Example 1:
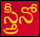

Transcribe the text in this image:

స్త్రీనో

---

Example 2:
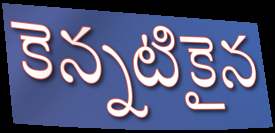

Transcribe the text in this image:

కెన్నటికైన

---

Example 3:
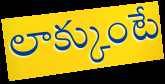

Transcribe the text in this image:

లాక్కుంటే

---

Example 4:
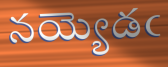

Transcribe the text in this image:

నయ్యెడఁ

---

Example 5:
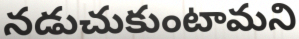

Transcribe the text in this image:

నడుచుకుంటామని